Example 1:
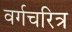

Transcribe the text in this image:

वर्गचरित्र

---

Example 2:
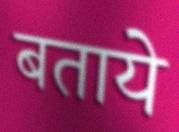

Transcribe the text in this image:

बताये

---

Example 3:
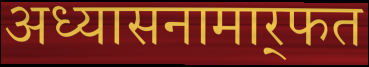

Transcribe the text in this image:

अध्यासनामार्फत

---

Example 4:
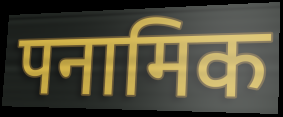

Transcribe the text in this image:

पनामिक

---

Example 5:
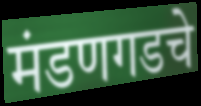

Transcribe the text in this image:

मंडणगडचे